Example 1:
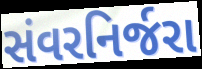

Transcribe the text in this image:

સંવરનિર્જરા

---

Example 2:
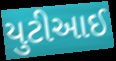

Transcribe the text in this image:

યુટીઆઈ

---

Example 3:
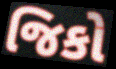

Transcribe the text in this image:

જિકો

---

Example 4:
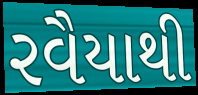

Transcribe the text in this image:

રવૈયાથી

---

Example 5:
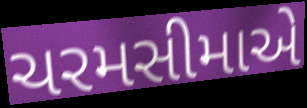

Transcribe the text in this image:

ચરમસીમાએ